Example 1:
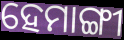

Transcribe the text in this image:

ହେମାଙ୍ଗୀ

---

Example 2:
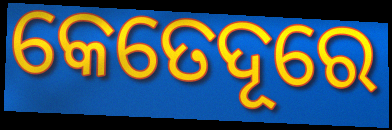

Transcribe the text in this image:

କେତେଦୂରେ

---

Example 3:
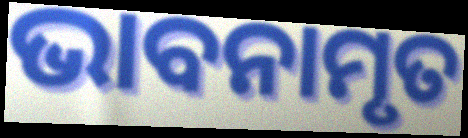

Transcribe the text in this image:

ଭାବନାମୃତ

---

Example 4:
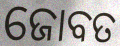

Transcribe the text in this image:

ଜୋବତ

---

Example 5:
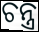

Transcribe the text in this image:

ଚନ୍ତ୍ର